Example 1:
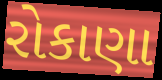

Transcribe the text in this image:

રોકાણા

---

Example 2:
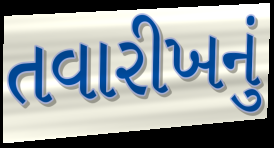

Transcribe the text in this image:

તવારીખનું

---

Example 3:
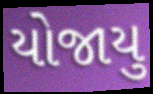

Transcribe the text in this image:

યોજાયુ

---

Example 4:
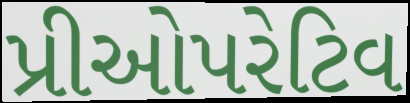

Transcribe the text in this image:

પ્રીઓપરેટિવ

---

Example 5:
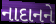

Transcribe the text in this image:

નાદાનને